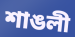
শাঙলী